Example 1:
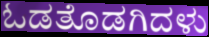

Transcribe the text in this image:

ಓಡತೊಡಗಿದಳು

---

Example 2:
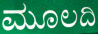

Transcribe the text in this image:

ಮೂಲದಿ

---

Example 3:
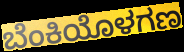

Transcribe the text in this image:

ಬೆಂಕಿಯೊಳಗಣ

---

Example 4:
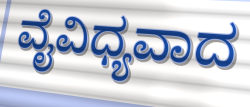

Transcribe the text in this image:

ವೈವಿಧ್ಯವಾದ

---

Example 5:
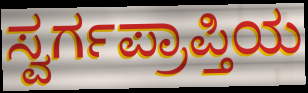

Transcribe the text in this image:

ಸ್ವರ್ಗಪ್ರಾಪ್ತಿಯ